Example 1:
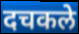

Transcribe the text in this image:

दचकले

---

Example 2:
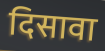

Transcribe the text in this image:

दिसावा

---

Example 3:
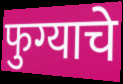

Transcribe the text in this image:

फुग्याचे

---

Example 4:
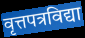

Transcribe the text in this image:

वृत्तपत्रविद्या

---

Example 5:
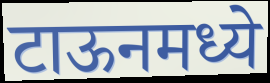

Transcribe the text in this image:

टाऊनमध्ये